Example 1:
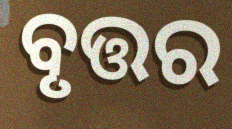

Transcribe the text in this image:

ବୃତ୍ତର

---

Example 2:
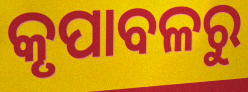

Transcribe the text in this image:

କୃପାବଳରୁ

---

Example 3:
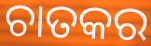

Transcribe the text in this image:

ଚାତକର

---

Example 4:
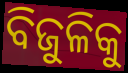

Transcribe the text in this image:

ବିଜୁଳିକୁ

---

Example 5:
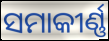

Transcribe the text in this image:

ସମାକୀର୍ଣ୍ଣ